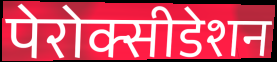
पेरोक्सीडेशन